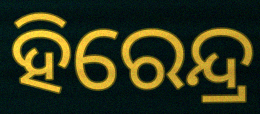
ହିରେନ୍ଦ୍ର